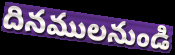
దినములనుండి